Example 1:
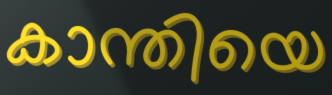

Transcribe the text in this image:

കാന്തിയെ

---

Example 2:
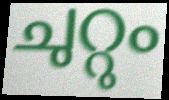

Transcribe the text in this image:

ചുറ്റും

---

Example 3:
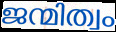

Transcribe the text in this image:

ജന്മിത്വം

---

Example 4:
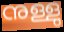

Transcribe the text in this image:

നുള്ളു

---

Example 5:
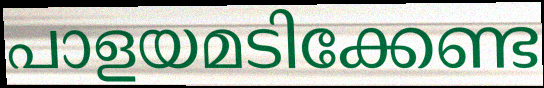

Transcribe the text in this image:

പാളയമടിക്കേണ്ട